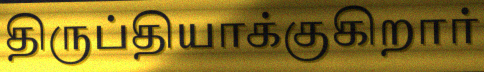
திருப்தியாக்குகிறார்